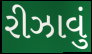
રીઝાવું